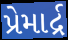
પ્રેમાર્દ્ર